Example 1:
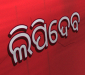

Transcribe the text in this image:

ଲିପିଦେବ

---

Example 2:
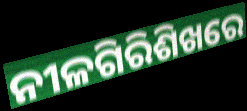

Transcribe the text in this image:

ନୀଳଗିରିଶିଖରେ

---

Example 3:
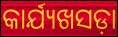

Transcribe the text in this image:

କାର୍ଯ୍ୟଖସଡ଼ା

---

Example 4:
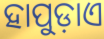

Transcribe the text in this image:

ହାପୁଡ଼ାଏ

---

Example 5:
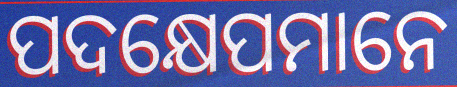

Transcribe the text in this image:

ପଦକ୍ଷେପମାନେ